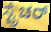
ಸ್ಟ್ರೆಚರ್